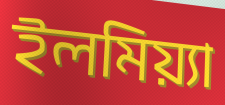
ইলমিয়্যা